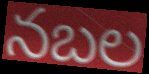
నబల